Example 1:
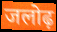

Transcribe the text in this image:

जलोढ़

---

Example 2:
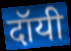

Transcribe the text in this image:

दॉयी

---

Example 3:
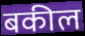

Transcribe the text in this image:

बकील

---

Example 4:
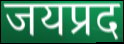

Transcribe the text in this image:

जयप्रद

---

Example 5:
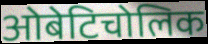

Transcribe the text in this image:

ओबेटिचोलिक